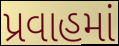
પ્રવાહમાં